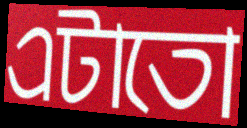
এটাতো